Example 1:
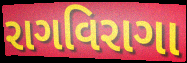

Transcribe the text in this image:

રાગવિરાગા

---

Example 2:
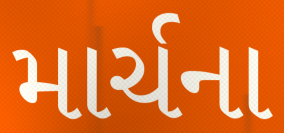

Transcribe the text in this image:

માર્ચના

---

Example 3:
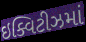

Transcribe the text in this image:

ઇક્વિટીઝમાં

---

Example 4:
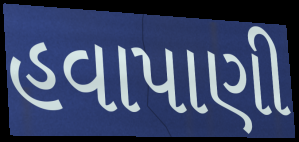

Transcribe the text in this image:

હવાપાણી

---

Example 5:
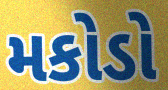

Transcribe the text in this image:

મકોડો